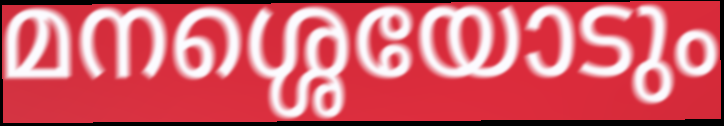
മനശ്ശെയോടും